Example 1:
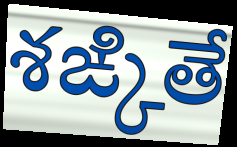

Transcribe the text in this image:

శఙ్కితే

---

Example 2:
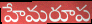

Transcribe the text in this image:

హేమరూప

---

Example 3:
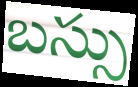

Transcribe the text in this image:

బస్సు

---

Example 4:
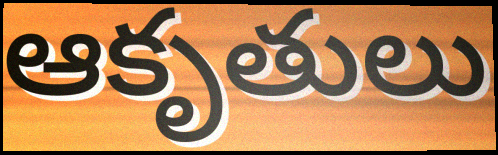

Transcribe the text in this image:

ఆకృతులు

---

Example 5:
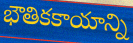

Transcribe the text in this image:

భౌతికకాయాన్ని